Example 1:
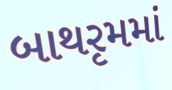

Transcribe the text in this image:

બાથરૃમમાં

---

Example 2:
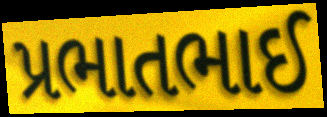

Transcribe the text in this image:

પ્રભાતભાઈ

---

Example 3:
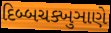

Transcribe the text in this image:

દિબ્બચક્ખુઞાણે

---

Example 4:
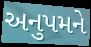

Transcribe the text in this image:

અનુપમને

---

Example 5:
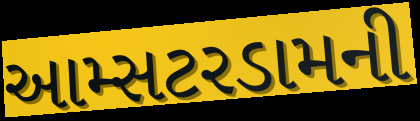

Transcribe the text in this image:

આમ્સટરડામની